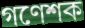
গণেশক